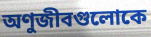
অণুজীবগুলোকে